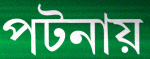
পটনায়